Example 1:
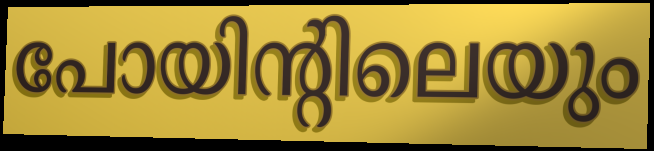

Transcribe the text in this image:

പോയിന്റിലെയും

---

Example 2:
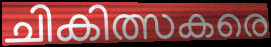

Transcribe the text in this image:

ചികിത്സകരെ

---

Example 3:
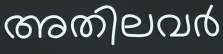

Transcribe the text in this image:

അതിലവർ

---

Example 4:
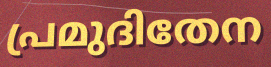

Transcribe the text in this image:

പ്രമുദിതേന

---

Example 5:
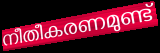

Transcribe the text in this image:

നീതീകരണമുണ്ട്